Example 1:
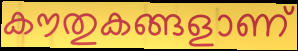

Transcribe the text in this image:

കൗതുകങ്ങളാണ്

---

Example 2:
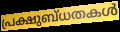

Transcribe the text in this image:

പ്രക്ഷുബ്ധതകൾ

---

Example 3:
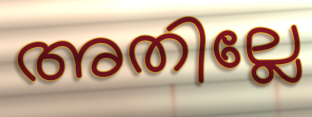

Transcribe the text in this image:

അതില്ലേ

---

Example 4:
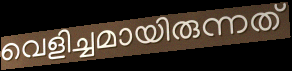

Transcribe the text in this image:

വെളിച്ചമായിരുന്നത്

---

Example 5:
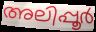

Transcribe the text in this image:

അലിപ്പൂർ